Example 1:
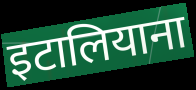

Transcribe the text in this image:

इटालियाना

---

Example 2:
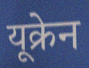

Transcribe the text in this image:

यूक्रेन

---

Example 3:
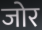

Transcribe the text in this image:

जोर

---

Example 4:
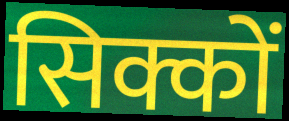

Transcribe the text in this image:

सिक्‍कों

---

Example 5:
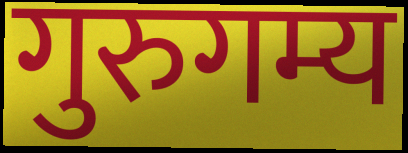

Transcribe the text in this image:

गुरुगम्य